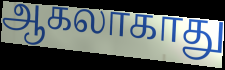
ஆகலாகாது